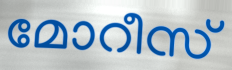
മോറീസ്